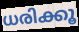
ധരിക്കൂ